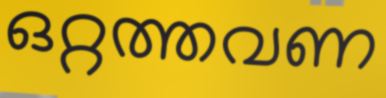
ഒറ്റത്തവണ